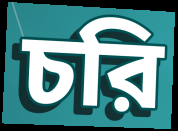
চরি